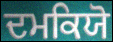
ਦਮਕਿਯੋ